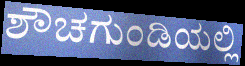
ಶೌಚಗುಂಡಿಯಲ್ಲಿ